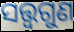
ସତ୍ତ୍ୱଗୁଣ